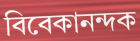
বিবেকানন্দক